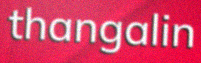
thangalin